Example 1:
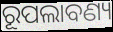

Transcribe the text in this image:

ରୂପଲାବଣ୍ୟ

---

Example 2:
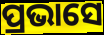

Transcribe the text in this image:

ପ୍ରଭାସେ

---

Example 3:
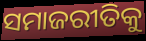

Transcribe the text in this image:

ସମାଜରୀତିକୁ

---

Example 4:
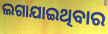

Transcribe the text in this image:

ଲଗାଯାଇଥିବାର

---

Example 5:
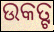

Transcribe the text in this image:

ଉକତ୍ଟ